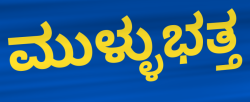
ಮುಳ್ಳುಭತ್ತ